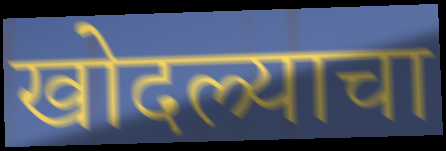
खोदल्याचा